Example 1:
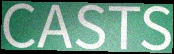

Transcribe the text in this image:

CASTS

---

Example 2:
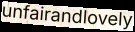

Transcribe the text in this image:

unfairandlovely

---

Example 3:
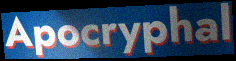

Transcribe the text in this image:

Apocryphal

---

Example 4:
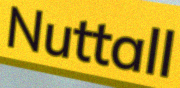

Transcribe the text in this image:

Nuttall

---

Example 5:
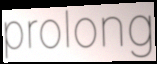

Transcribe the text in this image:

prolong